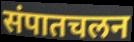
संपातचलन